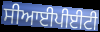
ਸੀਆਈਪੀਈਟੀ